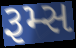
રૂમ્સ